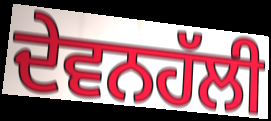
ਦੇਵਨਹੱਲੀ